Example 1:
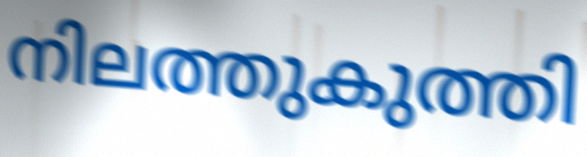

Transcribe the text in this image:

നിലത്തുകുത്തി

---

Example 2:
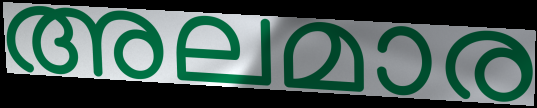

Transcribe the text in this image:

അലമാര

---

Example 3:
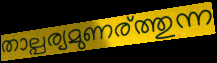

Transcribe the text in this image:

താല്പര്യമുണര്ത്തുന്ന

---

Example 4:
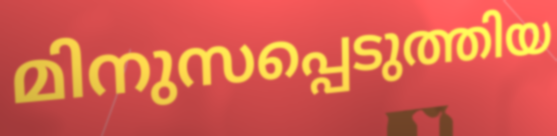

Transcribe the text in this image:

മിനുസപ്പെടുത്തിയ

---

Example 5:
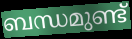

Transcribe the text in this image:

ബന്ധമുണ്ട്